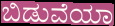
ಬಿಡುವೆಯಾ